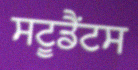
ਸਟੂਡੈਂਟਸ